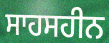
ਸਾਹਸਹੀਨ